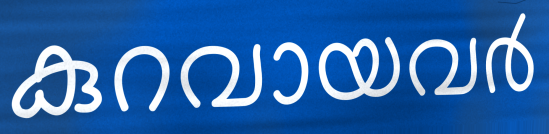
കുറവായവർ